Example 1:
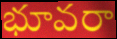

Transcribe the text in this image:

భూవరా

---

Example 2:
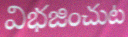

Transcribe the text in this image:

విభజించుట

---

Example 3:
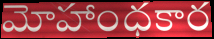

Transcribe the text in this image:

మోహాంధకార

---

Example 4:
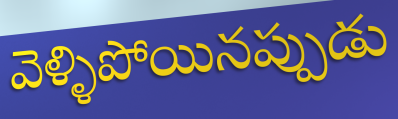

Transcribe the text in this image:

వెళ్ళిపోయినప్పుడు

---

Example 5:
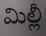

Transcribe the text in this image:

మిల్లీ